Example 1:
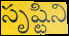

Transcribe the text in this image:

సృష్టిని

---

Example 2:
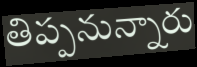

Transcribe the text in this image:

తిప్పనున్నారు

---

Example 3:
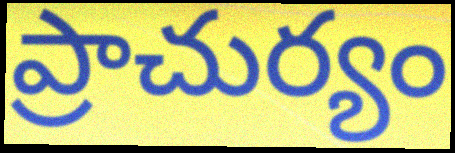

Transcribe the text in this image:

ప్రాచుర్యం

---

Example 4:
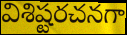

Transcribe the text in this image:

విశిష్టరచనగా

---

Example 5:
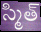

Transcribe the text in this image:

స్మిత్